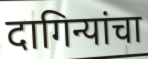
दागिन्यांचा